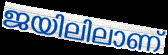
ജയിലിലാണ്